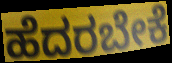
ಹೆದರಬೇಕೆ